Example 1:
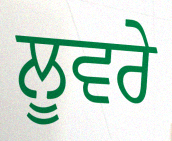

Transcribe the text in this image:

ਲੂਵਰੇ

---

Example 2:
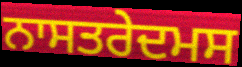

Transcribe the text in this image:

ਨਾਸਤਰੇਦਮਸ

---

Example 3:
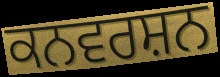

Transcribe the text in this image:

ਕਨਵਰਸ਼ਨ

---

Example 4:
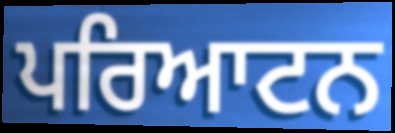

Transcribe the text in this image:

ਪਰਿਆਟਨ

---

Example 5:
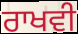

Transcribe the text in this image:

ਰਾਖਵੀ